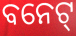
ବନେଟ୍